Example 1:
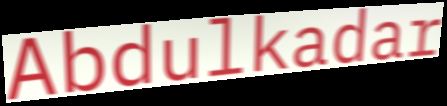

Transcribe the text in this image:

Abdulkadar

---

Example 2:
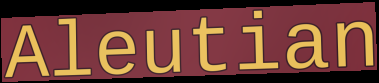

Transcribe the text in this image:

Aleutian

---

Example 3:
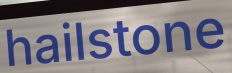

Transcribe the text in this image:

hailstone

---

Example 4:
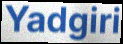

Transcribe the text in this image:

Yadgiri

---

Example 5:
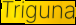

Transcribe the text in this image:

Triguna